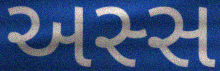
અસ્સ